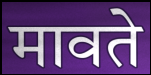
मावते